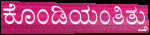
ಕೊಂಡಿಯಂತಿತ್ತು